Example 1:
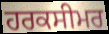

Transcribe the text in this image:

ਹਰਕਸੀਮਰ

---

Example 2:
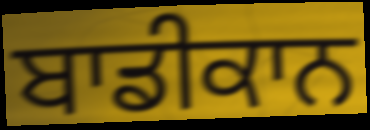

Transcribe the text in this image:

ਬਾਡੀਕਾਨ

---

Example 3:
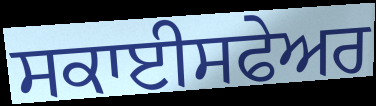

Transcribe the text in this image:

ਸਕਾਈਸਫੇਅਰ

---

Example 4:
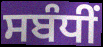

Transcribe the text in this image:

ਸਬੰਧੀਂ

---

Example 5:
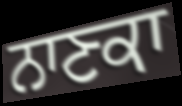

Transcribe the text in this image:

ਨਾਣਕਾ